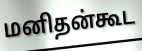
மனிதன்கூட